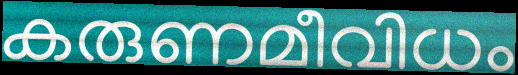
കരുണമീവിധം